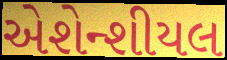
એશેન્શીયલ